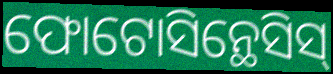
ଫୋଟୋସିନ୍ଥେସିସ୍